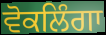
ਵੋਕਲਿੰਗਾ